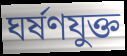
ঘর্ষণযুক্ত